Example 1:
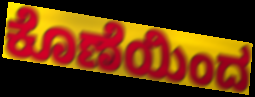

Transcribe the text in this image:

ಕೊಣೆಯಿಂದ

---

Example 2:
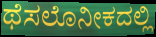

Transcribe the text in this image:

ಥೆಸಲೊನೀಕದಲ್ಲಿ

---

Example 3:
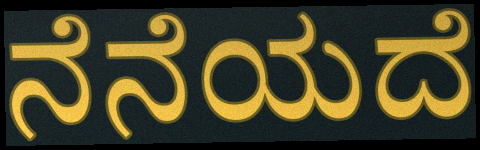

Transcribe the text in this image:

ನೆನೆಯದೆ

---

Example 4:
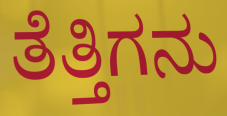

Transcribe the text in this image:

ತೆತ್ತಿಗನು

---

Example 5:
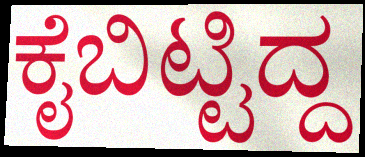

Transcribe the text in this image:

ಕೈಬಿಟ್ಟಿದ್ದ